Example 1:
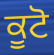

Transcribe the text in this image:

ਕੂਟੋ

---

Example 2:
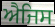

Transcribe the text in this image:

ਐਜਿਸ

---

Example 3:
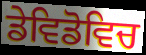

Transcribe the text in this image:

ਡੇਵਿਡੋਵਿਚ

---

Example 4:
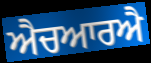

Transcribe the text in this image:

ਐਚਆਰਐ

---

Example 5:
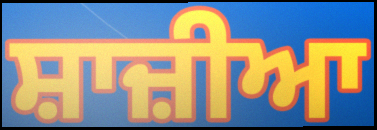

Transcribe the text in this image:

ਸ਼ਾਜ਼ੀਆ